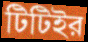
টিটিইর